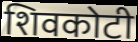
शिवकोटी